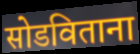
सोडविताना